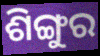
ଶିଙ୍ଗୁର